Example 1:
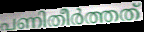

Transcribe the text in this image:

പണിതീർത്തത്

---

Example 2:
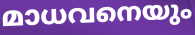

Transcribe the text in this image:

മാധവനെയും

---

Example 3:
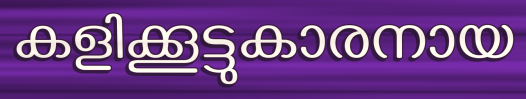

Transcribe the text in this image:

കളിക്കൂട്ടുകാരനായ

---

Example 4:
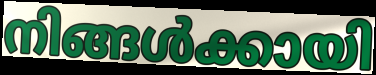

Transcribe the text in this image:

നിങ്ങൾക്കായി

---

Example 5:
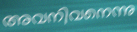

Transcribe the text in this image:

അവനിവനെന്നു